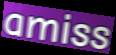
amiss